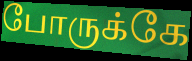
போருக்கே